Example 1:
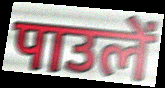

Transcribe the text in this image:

पाउलें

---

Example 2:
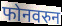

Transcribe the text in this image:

फोनवरुन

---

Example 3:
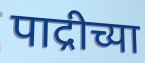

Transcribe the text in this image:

पाद्रीच्या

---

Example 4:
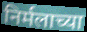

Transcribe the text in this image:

निर्मलाच्या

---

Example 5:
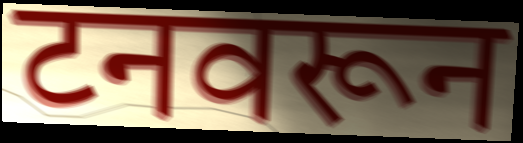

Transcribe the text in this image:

टनवरून